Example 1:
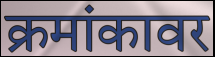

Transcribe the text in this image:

क्रमांकावर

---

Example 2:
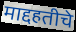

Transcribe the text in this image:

माद्दहतीचे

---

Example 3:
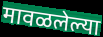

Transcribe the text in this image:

मावळलेल्या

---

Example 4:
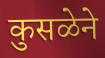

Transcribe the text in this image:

कुसळेने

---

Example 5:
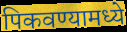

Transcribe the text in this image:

पिकवण्यामध्ये